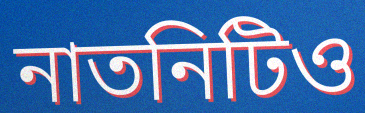
নাতনিটিও